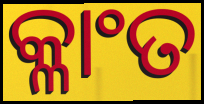
କ୍ଳାଂତ